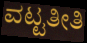
ವಟ್ಟತೀತಿ